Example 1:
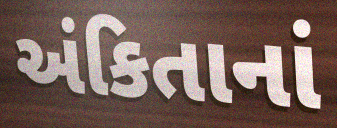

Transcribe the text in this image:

અંકિતાનાં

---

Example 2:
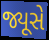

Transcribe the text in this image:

જ્યૂસે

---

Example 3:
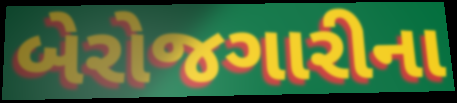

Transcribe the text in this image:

બેરોજગારીના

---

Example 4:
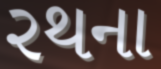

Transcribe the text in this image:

રથના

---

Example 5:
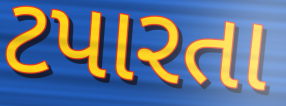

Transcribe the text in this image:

ટપારતા